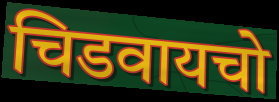
चिडवायचो